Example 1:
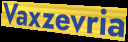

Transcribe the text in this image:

Vaxzevria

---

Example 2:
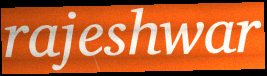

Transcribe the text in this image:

rajeshwar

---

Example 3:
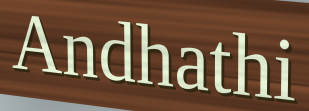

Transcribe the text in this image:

Andhathi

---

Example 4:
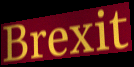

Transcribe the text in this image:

Brexit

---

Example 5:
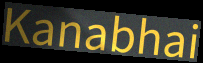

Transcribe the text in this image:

Kanabhai